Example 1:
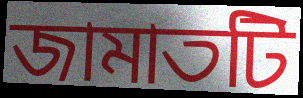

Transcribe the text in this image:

জামাতটি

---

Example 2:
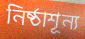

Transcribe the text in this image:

নিষ্ঠাশূন্য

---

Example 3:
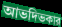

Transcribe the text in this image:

আভদিভকার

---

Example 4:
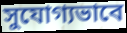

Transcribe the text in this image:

সুযোগ্যভাবে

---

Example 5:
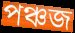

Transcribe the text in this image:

পঞ্চজ